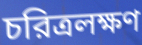
চরিত্রলক্ষণ